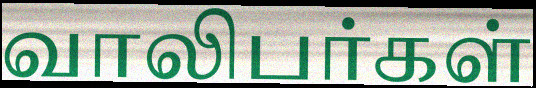
வாலிபர்கள்